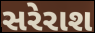
સરેરાશ